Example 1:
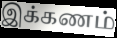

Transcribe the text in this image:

இக்கணம்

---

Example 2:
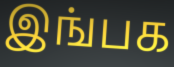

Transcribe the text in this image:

இங்பக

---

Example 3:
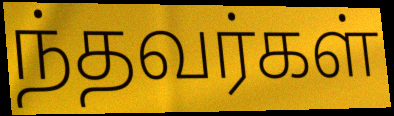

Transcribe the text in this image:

ந்தவர்கள்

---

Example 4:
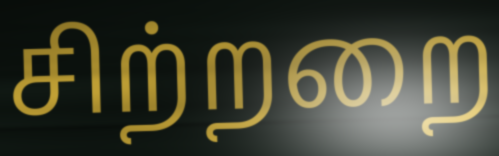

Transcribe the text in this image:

சிற்றறை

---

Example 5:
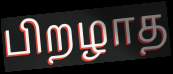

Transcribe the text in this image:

பிறழாத